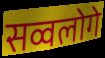
सव्वलोगे